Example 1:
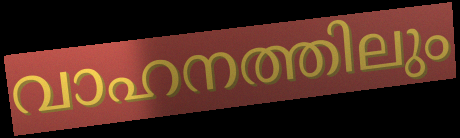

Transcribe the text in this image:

വാഹനത്തിലും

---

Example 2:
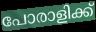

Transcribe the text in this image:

പോരാളിക്ക്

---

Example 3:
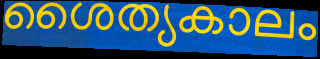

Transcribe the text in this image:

ശൈത്യകാലം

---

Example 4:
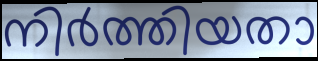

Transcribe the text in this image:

നിർത്തിയതാ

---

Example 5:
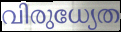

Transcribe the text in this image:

വിരുധ്യേത